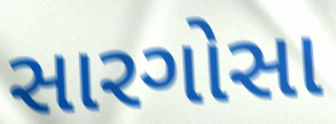
સારગોસા